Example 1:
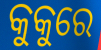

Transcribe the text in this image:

କୁକୁରେ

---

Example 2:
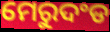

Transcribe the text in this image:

ମେରୁଦଂଡ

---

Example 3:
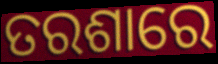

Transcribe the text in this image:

ତରଶାରେ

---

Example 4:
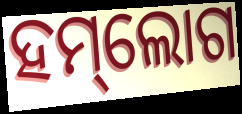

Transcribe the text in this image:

ହମ୍‌ଲୋଗ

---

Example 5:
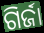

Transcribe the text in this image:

ଗିର୍ଜା